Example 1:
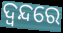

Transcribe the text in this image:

ଦ୍ୱନ୍ଦରେ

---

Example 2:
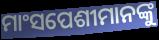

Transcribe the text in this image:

ମାଂସପେଶୀମାନଙ୍କୁ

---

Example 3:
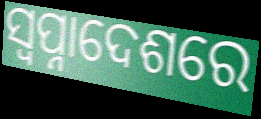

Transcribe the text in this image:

ସ୍ଵପ୍ନାଦେଶରେ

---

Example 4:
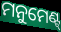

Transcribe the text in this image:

ମନୁମେଣ୍ଟ୍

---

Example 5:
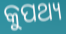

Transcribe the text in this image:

କୁପଥ୍ୟ